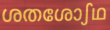
ശതശോഽഥ